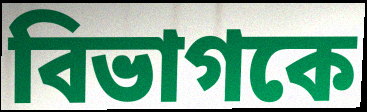
বিভাগকে